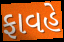
ફાવહે